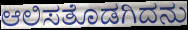
ಆಲಿಸತೊಡಗಿದನು